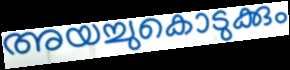
അയച്ചുകൊടുക്കും